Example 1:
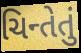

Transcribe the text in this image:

ચિન્તેતું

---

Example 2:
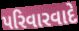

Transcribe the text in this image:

પરિવારવાદે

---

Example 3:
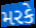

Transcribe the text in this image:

મરકે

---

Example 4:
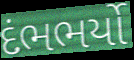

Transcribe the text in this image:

દંભભર્યો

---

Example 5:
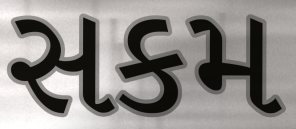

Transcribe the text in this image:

સકમ